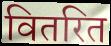
वितरित